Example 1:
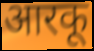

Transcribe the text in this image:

आरकू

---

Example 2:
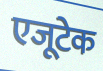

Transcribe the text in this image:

एजूटेक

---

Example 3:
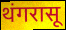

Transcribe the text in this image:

थंगरासू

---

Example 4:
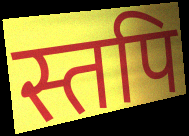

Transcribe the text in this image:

स्‍तपि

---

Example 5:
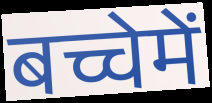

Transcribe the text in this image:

बच्चेमें